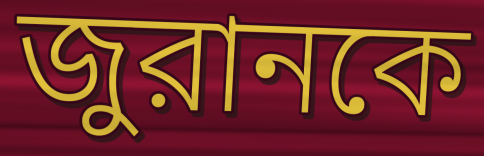
জুরানকে